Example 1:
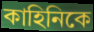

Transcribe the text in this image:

কাহিনিকে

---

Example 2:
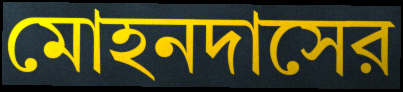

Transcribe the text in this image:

মোহনদাসের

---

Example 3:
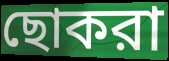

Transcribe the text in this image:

ছোকরা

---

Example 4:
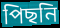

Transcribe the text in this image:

পিছনি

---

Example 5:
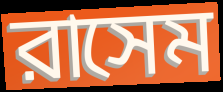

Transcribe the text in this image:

রাসেম